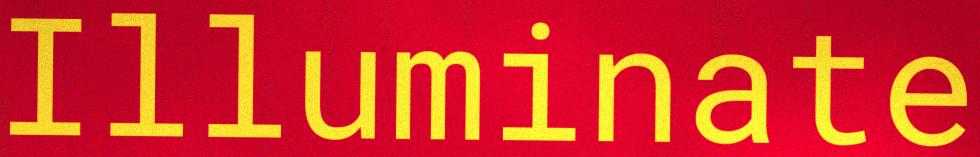
Illuminate